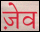
ज़ेव